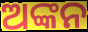
ଅଙ୍କନ